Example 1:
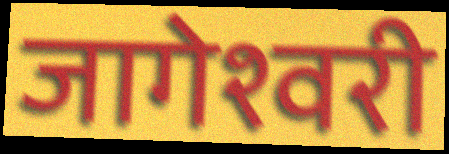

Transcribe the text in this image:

जागेश्वरी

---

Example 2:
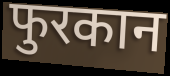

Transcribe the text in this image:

फुरकान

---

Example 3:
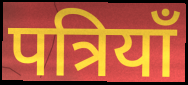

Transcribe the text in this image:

पत्रियाँ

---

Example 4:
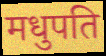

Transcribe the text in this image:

मधुपति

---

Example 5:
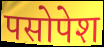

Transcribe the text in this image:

पसोपेश